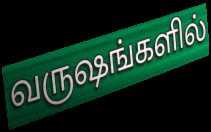
வருஷங்களில்